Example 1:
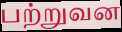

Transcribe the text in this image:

பற்றுவன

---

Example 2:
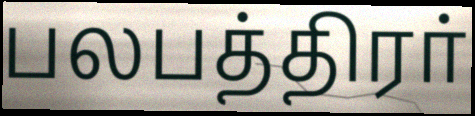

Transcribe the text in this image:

பலபத்திரர்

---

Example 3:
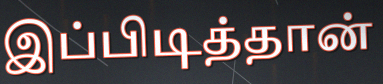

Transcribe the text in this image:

இப்பிடித்தான்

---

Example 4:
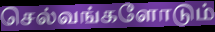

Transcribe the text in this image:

செல்வங்களோடும்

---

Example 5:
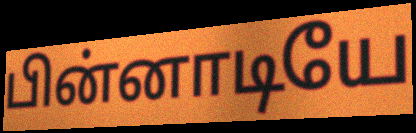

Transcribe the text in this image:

பின்னாடியே